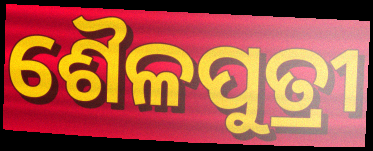
ଶୈଳପୁତ୍ରୀ